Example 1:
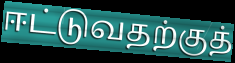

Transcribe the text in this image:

ஈட்டுவதற்குத்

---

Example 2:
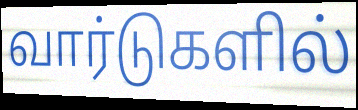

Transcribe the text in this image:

வார்டுகளில்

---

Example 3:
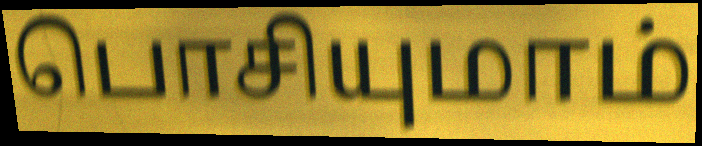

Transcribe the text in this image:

பொசியுமாம்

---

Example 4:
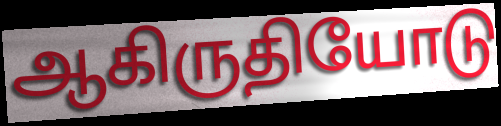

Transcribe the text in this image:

ஆகிருதியோடு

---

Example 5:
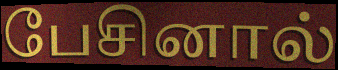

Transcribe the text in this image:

பேசினால்